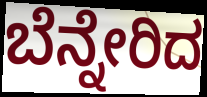
ಬೆನ್ನೇರಿದ